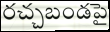
రచ్చబండపై